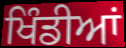
ਖਿੰਡੀਆਂ